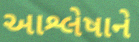
આશ્લેષાને